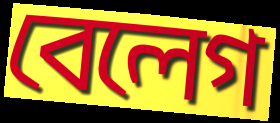
বেলেগ